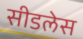
सीडलेस